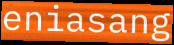
eniasang